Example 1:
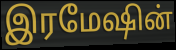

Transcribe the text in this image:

இரமேஷின்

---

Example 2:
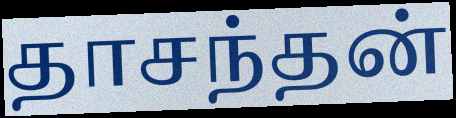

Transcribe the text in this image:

தாசந்தன்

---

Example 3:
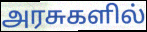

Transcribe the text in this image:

அரசுகளில்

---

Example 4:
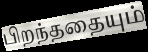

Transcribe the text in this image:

பிறந்ததையும்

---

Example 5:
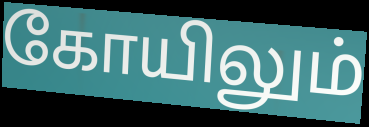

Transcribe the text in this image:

கோயிலும்